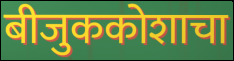
बीजुककोशाचा